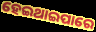
ହେଇଥାଇପାରେ